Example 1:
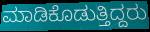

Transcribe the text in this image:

ಮಾಡಿಕೊಡುತ್ತಿದ್ದರು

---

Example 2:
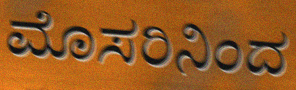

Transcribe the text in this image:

ಮೊಸರಿನಿಂದ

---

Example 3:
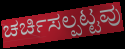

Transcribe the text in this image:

ಚರ್ಚಿಸಲ್ಪಟ್ಟವು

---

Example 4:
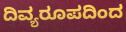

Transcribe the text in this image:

ದಿವ್ಯರೂಪದಿಂದ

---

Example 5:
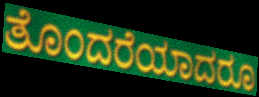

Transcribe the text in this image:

ತೊಂದರೆಯಾದರೂ